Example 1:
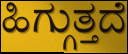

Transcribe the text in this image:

ಹಿಗ್ಗುತ್ತದೆ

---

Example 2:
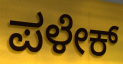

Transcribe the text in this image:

ಪಳೇಕ್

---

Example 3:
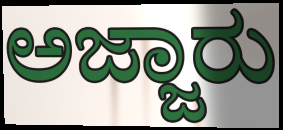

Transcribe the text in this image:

ಅಜ್ಜಾರು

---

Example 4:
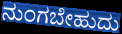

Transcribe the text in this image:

ನುಂಗಬೇಹುದು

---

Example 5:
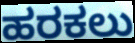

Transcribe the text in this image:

ಹರಕಲು